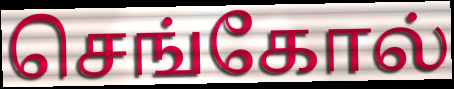
செங்கோல்